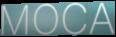
MOCA